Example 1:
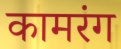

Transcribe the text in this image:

कामरंग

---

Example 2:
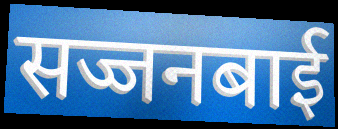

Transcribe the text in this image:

सज्जनबाई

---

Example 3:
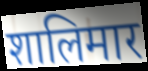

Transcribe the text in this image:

शालिमार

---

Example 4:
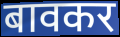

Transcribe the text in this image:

बावकर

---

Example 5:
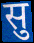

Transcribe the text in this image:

सु